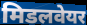
मिडलवेयर